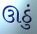
ઊઠું